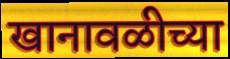
खानावळीच्या